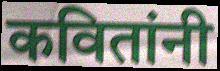
कवितांनी